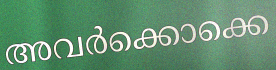
അവർക്കൊക്കെ